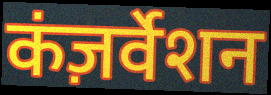
कंज़र्वेशन